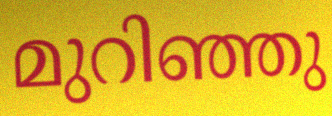
മുറിഞ്ഞു